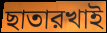
ছাতারখাই